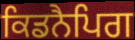
ਕਿਡਨੈਪਿਗ